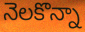
నెలకొన్నా